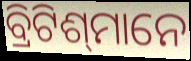
ବ୍ରିଟିଶ୍‍ମାନେ